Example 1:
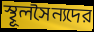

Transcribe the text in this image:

স্থূলসৈন্যদের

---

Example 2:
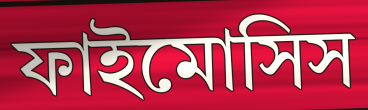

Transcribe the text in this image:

ফাইমোসিস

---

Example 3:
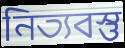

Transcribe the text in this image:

নিত্যবস্তু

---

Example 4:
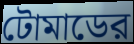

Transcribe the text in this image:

টোমাডের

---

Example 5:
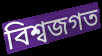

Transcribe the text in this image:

বিশ্বজগত